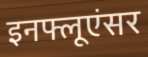
इनफ्लूएंसर